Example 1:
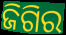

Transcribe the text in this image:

ଜିଗିର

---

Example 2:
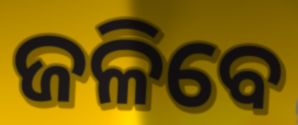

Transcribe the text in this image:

ଜଳିବେ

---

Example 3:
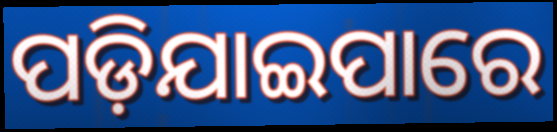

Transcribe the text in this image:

ପଡ଼ିଯାଇପାରେ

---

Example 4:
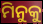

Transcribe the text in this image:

ମିନୁକୁ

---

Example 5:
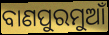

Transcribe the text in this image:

ବାଣପୁରମୁଆଁ